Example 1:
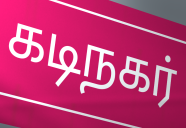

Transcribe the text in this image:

கடிநகர்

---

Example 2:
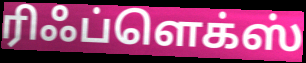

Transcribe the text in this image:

ரிஃப்ளெக்ஸ்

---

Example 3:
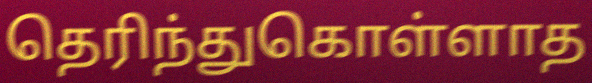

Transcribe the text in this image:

தெரிந்துகொள்ளாத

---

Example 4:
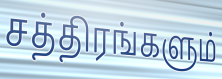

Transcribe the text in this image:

சத்திரங்களும்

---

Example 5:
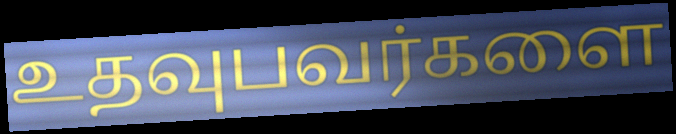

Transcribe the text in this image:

உதவுபவர்களை